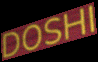
DOSHI